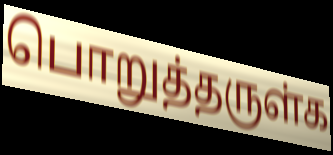
பொறுத்தருள்க